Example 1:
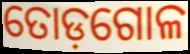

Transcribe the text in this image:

ତୋଡ଼ଗୋଳ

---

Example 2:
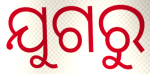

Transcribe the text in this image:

ଯୁଗରୁ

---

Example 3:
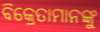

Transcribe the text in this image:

ବିକ୍ରେତାମାନଙ୍କୁ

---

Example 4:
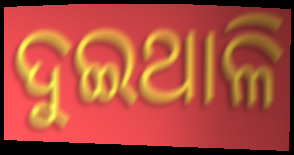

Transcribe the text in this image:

ଦୁଇଥାଳି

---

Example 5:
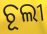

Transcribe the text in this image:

ଚୂଲୀ